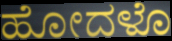
ಹೋದಳೊ